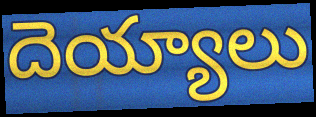
దెయ్యాలు